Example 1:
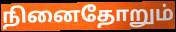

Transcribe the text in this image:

நினைதோறும்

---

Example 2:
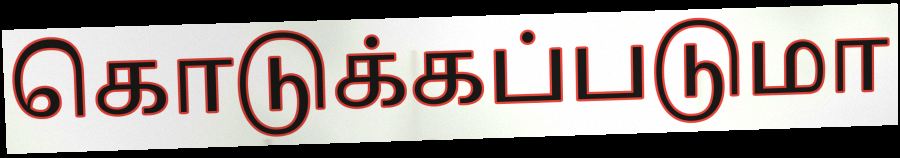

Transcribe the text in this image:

கொடுக்கப்படுமா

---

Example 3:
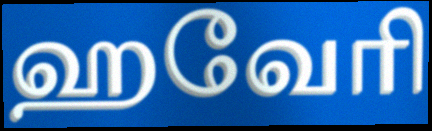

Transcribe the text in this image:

ஹவேரி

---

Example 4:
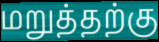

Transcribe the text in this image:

மறுத்தற்கு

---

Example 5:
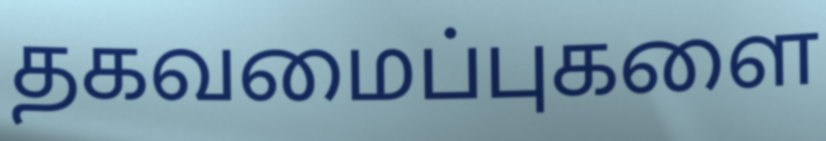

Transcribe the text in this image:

தகவமைப்புகளை